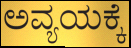
ಅವ್ಯಯಕ್ಕೆ